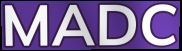
MADC